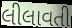
લીલાવતી